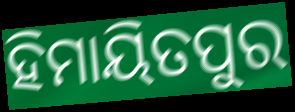
ହିମାୟିତପୁର